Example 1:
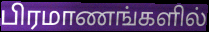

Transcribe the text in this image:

பிரமாணங்களில்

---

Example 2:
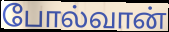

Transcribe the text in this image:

போல்வான்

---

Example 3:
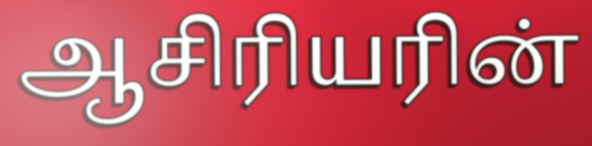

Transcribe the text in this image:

ஆசிரியரின்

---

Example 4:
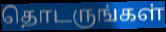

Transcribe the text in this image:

தொடருங்கள்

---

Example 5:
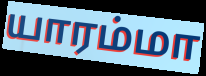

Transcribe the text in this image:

யாரம்மா